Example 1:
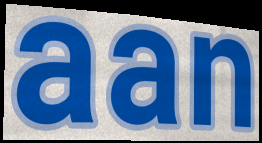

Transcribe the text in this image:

aan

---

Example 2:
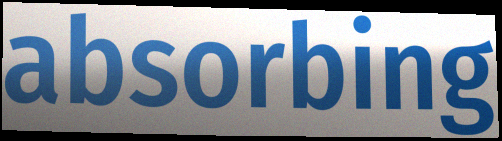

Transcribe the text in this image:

absorbing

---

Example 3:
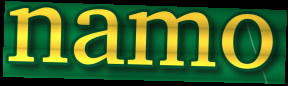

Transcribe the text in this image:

namo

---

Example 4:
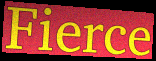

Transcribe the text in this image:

Fierce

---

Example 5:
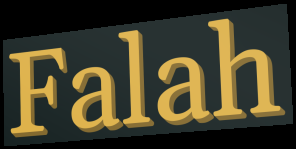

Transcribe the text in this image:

Falah